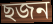
ছজন